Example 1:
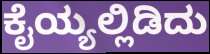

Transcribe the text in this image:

ಕೈಯ್ಯಲ್ಲಿಡಿದು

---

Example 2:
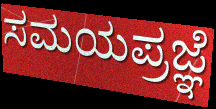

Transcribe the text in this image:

ಸಮಯಪ್ರಜ್ಞೆ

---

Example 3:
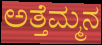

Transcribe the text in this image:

ಅತ್ತೆಮ್ಮನ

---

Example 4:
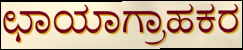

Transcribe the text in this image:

ಛಾಯಾಗ್ರಾಹಕರ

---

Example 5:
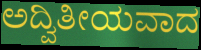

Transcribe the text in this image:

ಅದ್ವಿತೀಯವಾದ